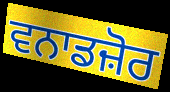
ਵਨਾਡਜ਼ੋਰ